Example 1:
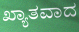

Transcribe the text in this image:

ಖ್ಯಾತವಾದ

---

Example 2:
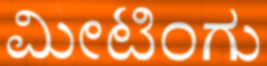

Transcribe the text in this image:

ಮೀಟಿಂಗು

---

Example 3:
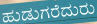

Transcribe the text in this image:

ಹುಡುಗರೆದುರು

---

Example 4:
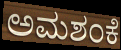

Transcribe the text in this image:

ಅಮಶಂಕೆ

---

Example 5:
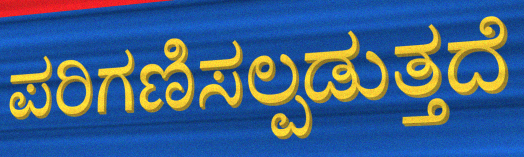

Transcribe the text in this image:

ಪರಿಗಣಿಸಲ್ಪಡುತ್ತದೆ